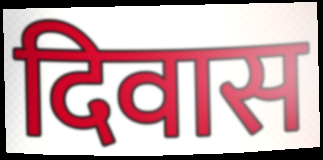
दिवास